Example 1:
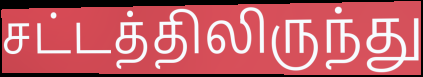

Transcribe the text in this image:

சட்டத்திலிருந்து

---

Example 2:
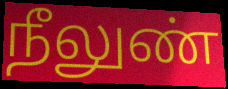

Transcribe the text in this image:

நீலுண்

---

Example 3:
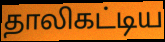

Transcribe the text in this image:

தாலிகட்டிய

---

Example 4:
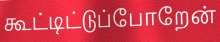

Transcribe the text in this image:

கூட்டிட்டுப்போறேன்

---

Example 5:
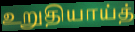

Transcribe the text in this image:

உறுதியாய்த்